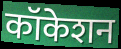
कॉकेशन